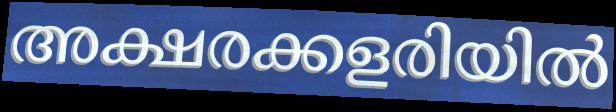
അക്ഷരക്കളരിയിൽ